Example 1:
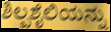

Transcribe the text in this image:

ಶಿಲ್ಪಶೈಲಿಯನ್ನು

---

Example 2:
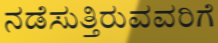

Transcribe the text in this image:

ನಡೆಸುತ್ತಿರುವವರಿಗೆ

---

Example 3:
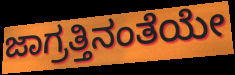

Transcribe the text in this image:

ಜಾಗ್ರತ್ತಿನಂತೆಯೇ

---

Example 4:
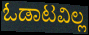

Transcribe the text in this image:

ಓಡಾಟವಿಲ್ಲ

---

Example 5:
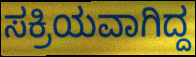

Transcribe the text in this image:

ಸಕ್ರಿಯವಾಗಿದ್ದ